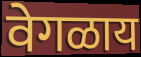
वेगळाय